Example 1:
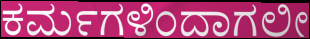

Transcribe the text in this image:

ಕರ್ಮಗಳಿಂದಾಗಲೀ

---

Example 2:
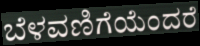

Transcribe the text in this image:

ಬೆಳವಣಿಗೆಯೆಂದರೆ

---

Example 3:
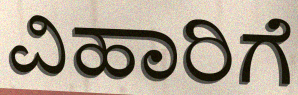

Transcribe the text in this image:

ವಿಹಾರಿಗೆ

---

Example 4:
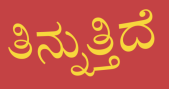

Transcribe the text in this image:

ತಿನ್ನುತ್ತಿದೆ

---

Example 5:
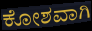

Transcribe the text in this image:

ಕೋಶವಾಗಿ